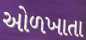
ઓળખાતા